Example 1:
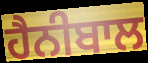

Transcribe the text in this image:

ਹੈਨੀਬਾਲ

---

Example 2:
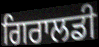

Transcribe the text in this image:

ਗਿਰਾਲਡੀ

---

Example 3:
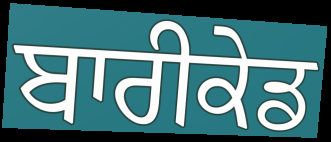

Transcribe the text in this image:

ਬਾਰੀਕੇਡ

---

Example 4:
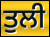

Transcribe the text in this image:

ਤੁਲੀ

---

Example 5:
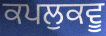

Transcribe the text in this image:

ਕਪਲੁਕਵੂ